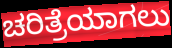
ಚರಿತ್ರೆಯಾಗಲು